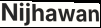
Nijhawan